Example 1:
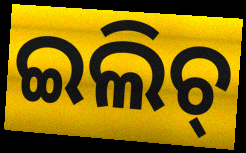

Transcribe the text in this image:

ଇଲିଚ୍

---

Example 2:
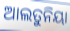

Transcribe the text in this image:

ଆଲତୁନିୟା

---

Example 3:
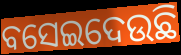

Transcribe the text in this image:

ବସେଇଦେଉଛି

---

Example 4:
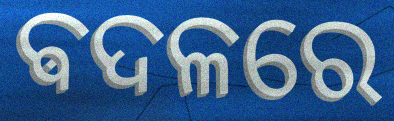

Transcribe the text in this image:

ଵଦଳରେ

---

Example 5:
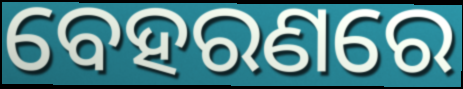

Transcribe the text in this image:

ବେହରଣରେ